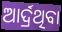
ଆର୍ଦ୍ରଥିବା